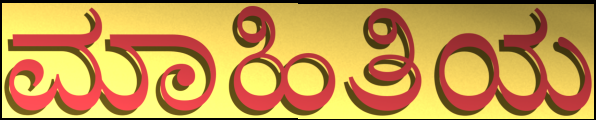
ಮಾಹಿತಿಯ